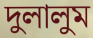
দুলালুম